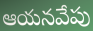
ఆయనవేపు